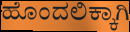
ಹೊಂದಲಿಕ್ಕಾಗಿ